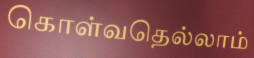
கொள்வதெல்லாம்